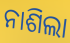
ନାଶିଲା